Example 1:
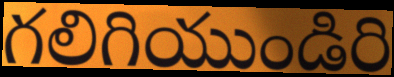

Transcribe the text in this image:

గలిగియుండిరి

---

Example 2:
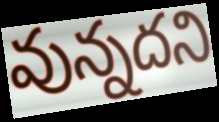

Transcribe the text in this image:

వున్నదని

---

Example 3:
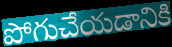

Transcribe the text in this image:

పోగుచేయడానికి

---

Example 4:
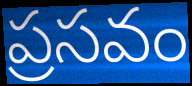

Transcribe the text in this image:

ప్రసవం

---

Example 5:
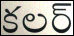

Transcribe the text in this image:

కలర్